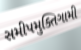
સમીપમુક્તિગામી